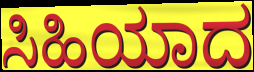
ಸಿಹಿಯಾದ